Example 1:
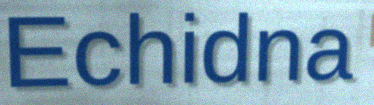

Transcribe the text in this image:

Echidna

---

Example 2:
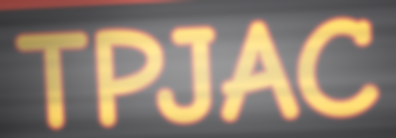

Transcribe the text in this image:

TPJAC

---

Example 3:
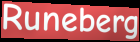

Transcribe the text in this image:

Runeberg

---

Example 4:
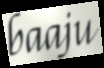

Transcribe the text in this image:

baaju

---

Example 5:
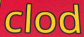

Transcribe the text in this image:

clod